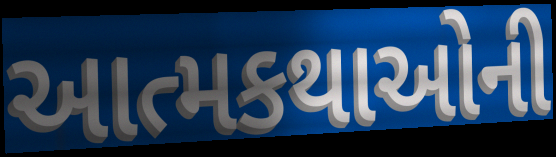
આત્મકથાઓની